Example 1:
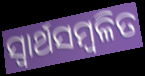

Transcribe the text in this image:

ସ୍ଵାର୍ଥସମ୍ବଳିତ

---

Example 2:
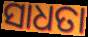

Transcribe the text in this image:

ସାଧତା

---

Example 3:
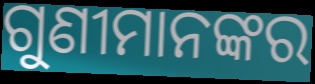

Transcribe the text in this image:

ଗୁଣୀମାନଙ୍କର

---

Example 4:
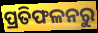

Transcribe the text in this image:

ପ୍ରତିଫଳନରୁ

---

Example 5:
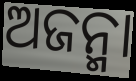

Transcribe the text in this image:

ଅଜନ୍ମା